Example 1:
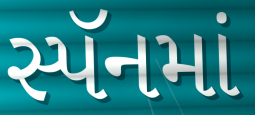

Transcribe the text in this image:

સ્પૅનમાં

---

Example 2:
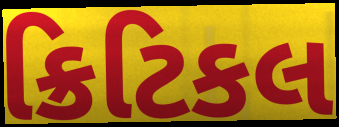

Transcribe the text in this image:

ક્રિટિકલ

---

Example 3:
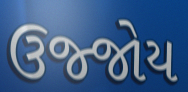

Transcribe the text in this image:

ઉજ્જોય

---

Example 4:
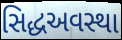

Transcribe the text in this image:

સિદ્ધઅવસ્થા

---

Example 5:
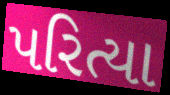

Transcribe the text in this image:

પરિત્યા